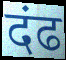
दंढ